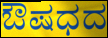
ಔಷಧದ